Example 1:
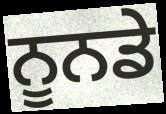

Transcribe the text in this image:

ਨੂਨਡੇ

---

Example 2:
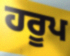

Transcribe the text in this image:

ਹਰੂਪ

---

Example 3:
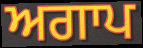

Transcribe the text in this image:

ਅਗਾਪ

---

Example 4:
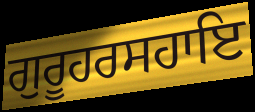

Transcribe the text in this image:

ਗੁਰੂਹਰਸਹਾਇ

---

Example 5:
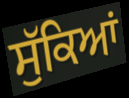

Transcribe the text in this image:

ਸੁੱਕਿਆਂ